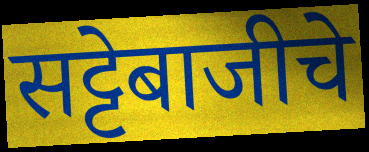
सट्टेबाजीचे